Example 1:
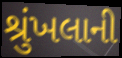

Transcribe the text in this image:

શ્રુંખલાની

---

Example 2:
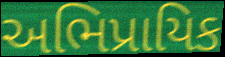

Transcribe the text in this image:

અભિપ્રાયિક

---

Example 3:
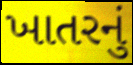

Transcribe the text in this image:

ખાતરનું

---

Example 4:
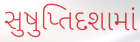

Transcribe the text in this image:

સુષુપ્તિદશામાં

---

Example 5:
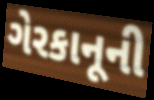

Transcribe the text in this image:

ગેરકાનૂની